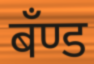
बँण्ड